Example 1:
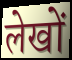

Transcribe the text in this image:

लेखों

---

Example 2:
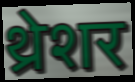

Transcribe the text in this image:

थ्रेशर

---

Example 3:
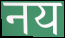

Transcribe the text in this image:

नय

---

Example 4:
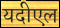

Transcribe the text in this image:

यदीएल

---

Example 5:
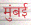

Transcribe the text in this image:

मुंबई